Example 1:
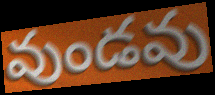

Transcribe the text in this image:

వుండవు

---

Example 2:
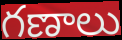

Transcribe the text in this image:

గణాలు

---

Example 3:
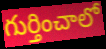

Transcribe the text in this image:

గుర్తించాలో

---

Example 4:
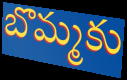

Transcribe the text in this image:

బొమ్మకు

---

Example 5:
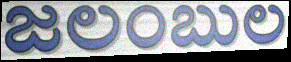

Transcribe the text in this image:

జలంబుల